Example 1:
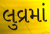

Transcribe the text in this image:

લુવ્રમાં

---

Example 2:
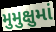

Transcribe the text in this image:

મુમુક્ષુમાં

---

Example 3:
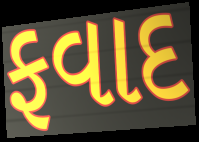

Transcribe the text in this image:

ફવાદ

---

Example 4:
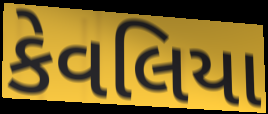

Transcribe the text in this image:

કેવલિયા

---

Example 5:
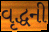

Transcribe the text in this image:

વૃદ્ધની